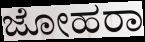
ಜೋಹರಾ